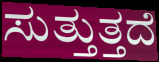
ಸುತ್ತುತ್ತದೆ